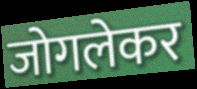
जोगलेकर